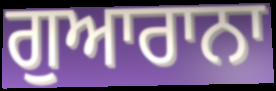
ਗੁਆਰਾਨਾ